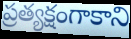
ప్రత్యక్షంగాకాని